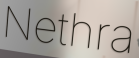
Nethra